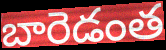
బారెడంత